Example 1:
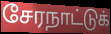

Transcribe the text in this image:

சேரநாட்டுக்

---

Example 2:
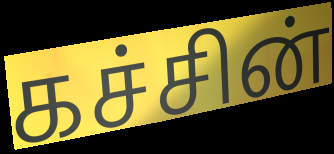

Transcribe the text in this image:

கச்சின்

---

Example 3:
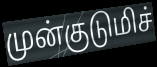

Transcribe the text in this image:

முன்குடுமிச்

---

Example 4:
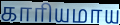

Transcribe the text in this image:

காரியமாய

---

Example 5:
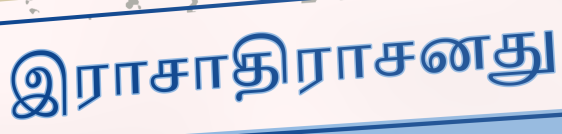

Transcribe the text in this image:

இராசாதிராசனது